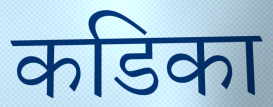
कडिका